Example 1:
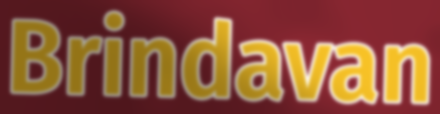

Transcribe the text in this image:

Brindavan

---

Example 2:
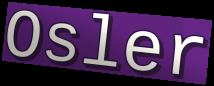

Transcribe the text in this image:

Osler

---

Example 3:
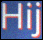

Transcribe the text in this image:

Hij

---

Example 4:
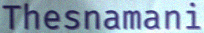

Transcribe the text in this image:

Thesnamani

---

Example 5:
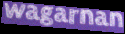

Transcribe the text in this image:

wagarnan